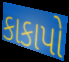
કાકાપો